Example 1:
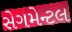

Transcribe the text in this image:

સેગમેન્ટલ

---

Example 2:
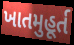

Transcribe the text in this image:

ખાતમુહૂર્ત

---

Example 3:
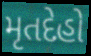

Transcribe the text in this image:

મૃતદેહો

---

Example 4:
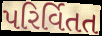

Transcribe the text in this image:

પરિર્વિતત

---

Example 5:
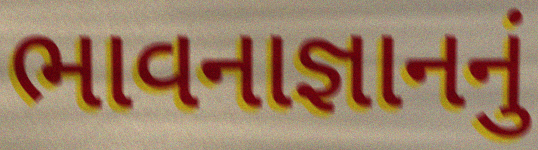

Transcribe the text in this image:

ભાવનાજ્ઞાનનું